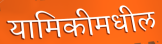
यामिकीमधील